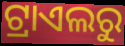
ଟ୍ରାଏଲରୁ